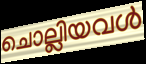
ചൊല്ലിയവൾ